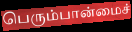
பெரும்பான்மைச்